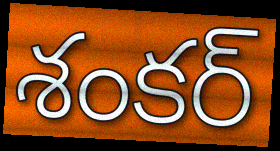
శంకర్